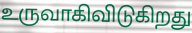
உருவாகிவிடுகிறது